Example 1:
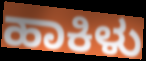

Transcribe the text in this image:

ಹಾಕಿಳು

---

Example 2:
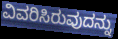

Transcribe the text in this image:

ವಿವರಿಸಿರುವುದನ್ನು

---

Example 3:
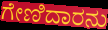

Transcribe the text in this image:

ಗೇಣಿದಾರನು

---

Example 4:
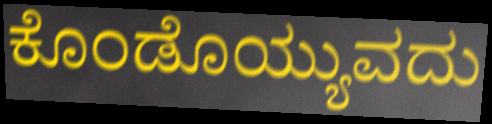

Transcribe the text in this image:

ಕೊಂಡೊಯ್ಯುವದು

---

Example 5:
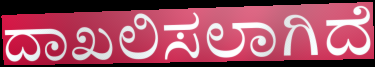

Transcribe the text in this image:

ದಾಖಲಿಸಲಾಗಿದೆ